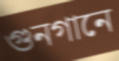
গুনগানে